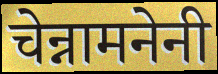
चेन्नामनेनी